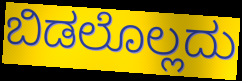
ಬಿಡಲೊಲ್ಲದು